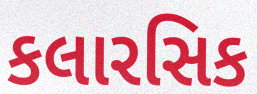
કલારસિક